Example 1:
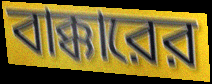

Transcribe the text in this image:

বাক্কারের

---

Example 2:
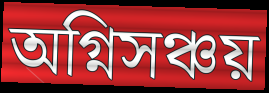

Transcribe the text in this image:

অগ্নিসঞ্চয়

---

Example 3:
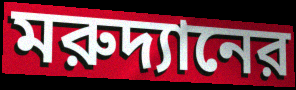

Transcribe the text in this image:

মরুদ্যানের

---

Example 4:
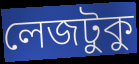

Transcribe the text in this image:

লেজটুকু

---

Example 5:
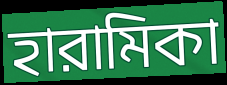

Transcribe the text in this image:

হারামিকা